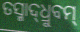
ତସ୍ମାଦ୍‌ଧ୍ରୁବମ୍